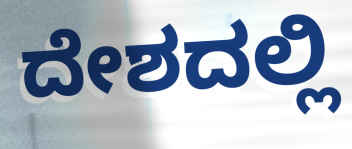
ದೇಶದಲ್ಲಿ